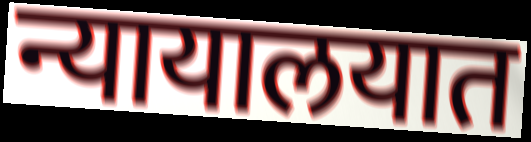
न्यायालयात